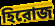
হিরোজ